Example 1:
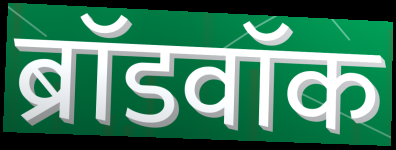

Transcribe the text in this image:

ब्रॉडवॉक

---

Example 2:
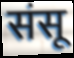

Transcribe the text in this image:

संसू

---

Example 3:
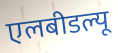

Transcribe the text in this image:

एलबीडल्यू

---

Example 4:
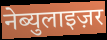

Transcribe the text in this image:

नेब्युलाइज़र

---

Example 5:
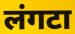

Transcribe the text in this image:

लंगटा